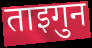
ताइगुन